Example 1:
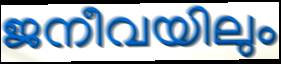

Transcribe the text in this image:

ജനീവയിലും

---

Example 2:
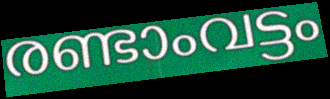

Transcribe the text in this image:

രണ്ടാംവട്ടം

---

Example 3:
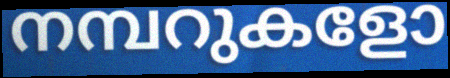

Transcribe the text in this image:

നമ്പറുകളോ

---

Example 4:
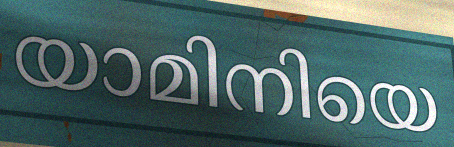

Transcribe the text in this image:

യാമിനിയെ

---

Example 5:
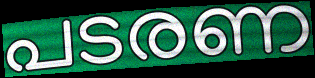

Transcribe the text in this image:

പടരണ